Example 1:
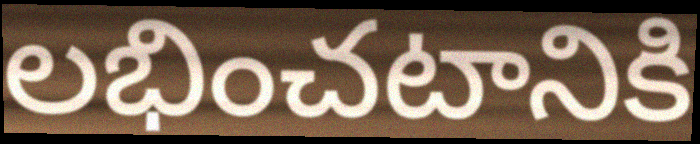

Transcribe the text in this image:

లభించటానికి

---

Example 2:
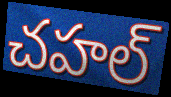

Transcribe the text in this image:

చహల్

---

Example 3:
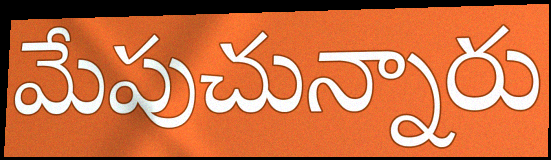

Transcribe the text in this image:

మేపుచున్నారు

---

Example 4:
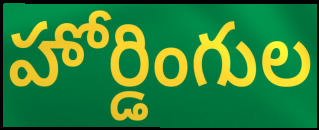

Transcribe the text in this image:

హోర్డింగుల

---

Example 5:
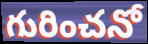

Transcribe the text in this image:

గురించనో